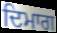
ਦਿਮਾਗ